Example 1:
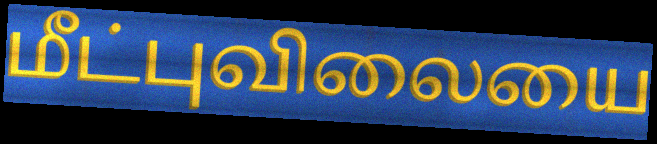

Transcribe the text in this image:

மீட்புவிலையை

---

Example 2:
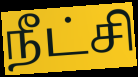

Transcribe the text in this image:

நீட்சி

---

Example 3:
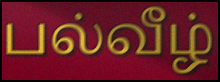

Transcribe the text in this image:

பல்வீழ்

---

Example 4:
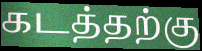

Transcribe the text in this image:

கடத்தற்கு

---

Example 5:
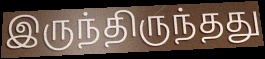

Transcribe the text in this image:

இருந்திருந்தது